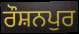
ਰੌਸ਼ਨਪੁਰ